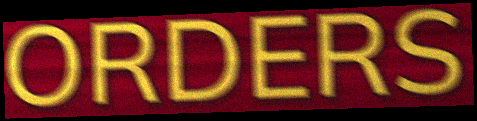
ORDERS